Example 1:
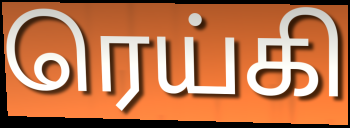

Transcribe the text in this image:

ரெய்கி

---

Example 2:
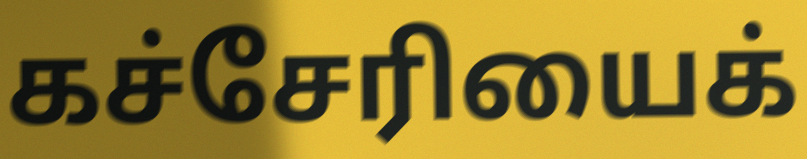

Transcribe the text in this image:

கச்சேரியைக்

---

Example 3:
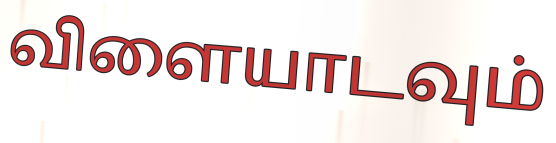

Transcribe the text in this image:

விளையாடவும்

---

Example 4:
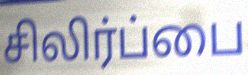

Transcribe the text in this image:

சிலிர்ப்பை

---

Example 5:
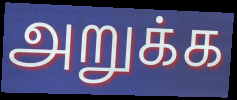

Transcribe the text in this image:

அறுக்க